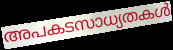
അപകടസാധ്യതകൾ